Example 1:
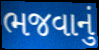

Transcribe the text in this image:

ભજવાનું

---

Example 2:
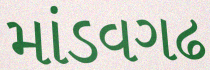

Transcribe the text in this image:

માંડવગઢ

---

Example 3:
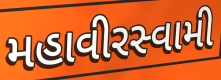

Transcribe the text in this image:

મહાવીરસ્વામી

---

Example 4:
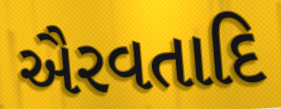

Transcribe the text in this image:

ઐરવતાદિ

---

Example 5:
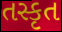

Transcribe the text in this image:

તસ્કૃત